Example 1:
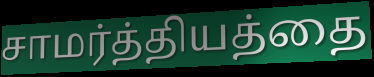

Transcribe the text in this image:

சாமர்த்தியத்தை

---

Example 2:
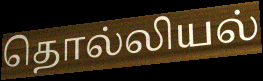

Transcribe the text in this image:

தொல்லியல்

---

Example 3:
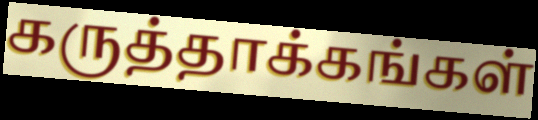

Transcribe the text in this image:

கருத்தாக்கங்கள்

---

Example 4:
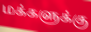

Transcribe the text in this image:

மக்களுக்கு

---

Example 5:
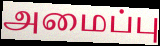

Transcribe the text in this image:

அமைப்பு